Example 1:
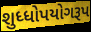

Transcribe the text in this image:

શુધ્ધોપયોગરૂપ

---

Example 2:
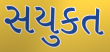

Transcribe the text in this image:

સયુકત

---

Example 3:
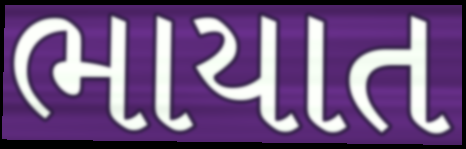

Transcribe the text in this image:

ભાયાત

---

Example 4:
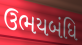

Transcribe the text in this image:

ઉભયબંધિ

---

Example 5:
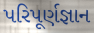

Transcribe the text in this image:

પરિપૂર્ણજ્ઞાન